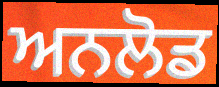
ਅਨਲੋਡ